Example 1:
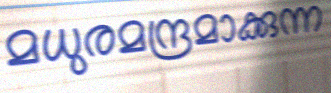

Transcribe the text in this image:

മധുരമന്ദ്രമാക്കുന്ന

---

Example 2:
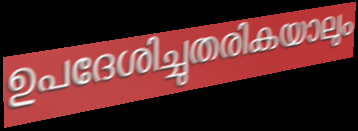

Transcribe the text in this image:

ഉപദേശിച്ചുതരികയാലും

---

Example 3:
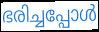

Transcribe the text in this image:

ഭരിച്ചപ്പോൾ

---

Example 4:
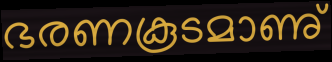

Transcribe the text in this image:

ഭരണകൂടമാണു്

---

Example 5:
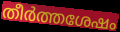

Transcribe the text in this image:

തീർത്തശേഷം